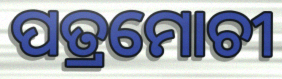
ପତ୍ରମୋଚୀ